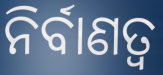
ନିର୍ବାଣତ୍ୱ